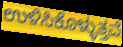
ಉಳಿಸಿಕೊಳ್ಳುತ್ತವೆ